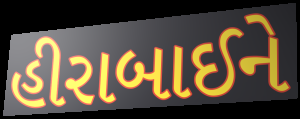
હીરાબાઈને